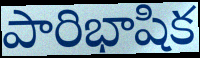
పారిభాషిక